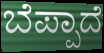
ಬೆಪ್ಪಾದೆ